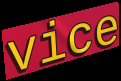
vice